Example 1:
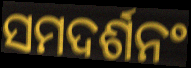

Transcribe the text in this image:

ସମଦର୍ଶନଂ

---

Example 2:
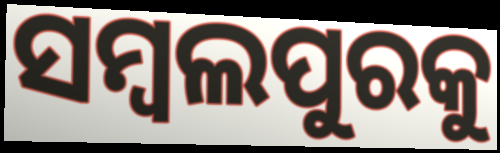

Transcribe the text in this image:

ସମ୍ୱଲପୁରକୁ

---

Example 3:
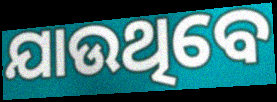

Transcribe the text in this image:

ଯାଉଥିବେ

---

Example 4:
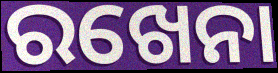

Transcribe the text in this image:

ରଖେନା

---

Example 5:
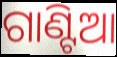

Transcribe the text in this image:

ଗାଣ୍ଟିଆ